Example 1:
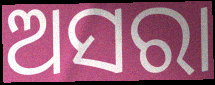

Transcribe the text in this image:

ଅସରା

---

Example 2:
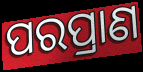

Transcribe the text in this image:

ପରପ୍ରାଣ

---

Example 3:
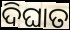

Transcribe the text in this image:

ଦିଘାତ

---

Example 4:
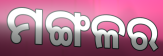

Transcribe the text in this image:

ମଙ୍ଗଳର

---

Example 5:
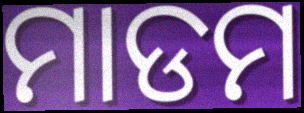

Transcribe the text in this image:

ମାଡମ